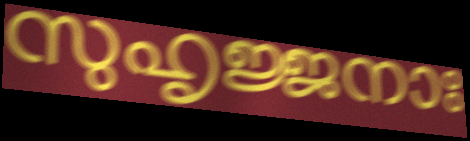
സുഹൃജ്ജനാഃ